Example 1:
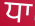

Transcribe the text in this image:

ਧਾ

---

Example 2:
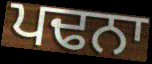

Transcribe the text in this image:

ਪਢਨਾ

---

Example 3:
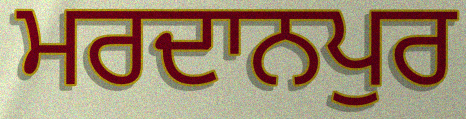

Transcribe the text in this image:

ਮਰਦਾਨਪੁਰ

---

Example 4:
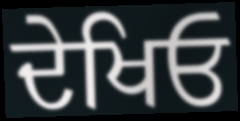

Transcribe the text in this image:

ਦੇਖਿਓ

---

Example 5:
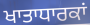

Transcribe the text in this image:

ਖਾਤਾਧਾਰਕਾਂ